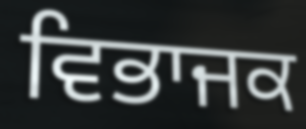
ਵਿਭਾਜਕ